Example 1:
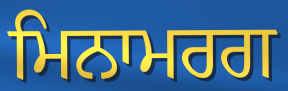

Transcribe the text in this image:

ਮਿਨਾਮਰਗ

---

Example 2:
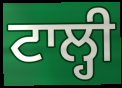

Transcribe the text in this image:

ਟਾਲ੍ਹੀ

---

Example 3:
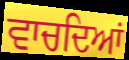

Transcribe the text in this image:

ਵਾਚਦਿਆਂ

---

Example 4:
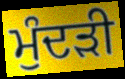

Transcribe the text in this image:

ਮੁੰਦੜੀ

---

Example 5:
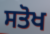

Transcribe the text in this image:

ਸਤੋਖ